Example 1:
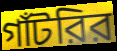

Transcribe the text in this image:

গাঁটরির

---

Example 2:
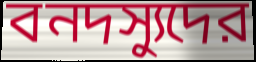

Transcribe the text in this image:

বনদস্যুদের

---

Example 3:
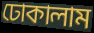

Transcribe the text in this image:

ঢোকালাম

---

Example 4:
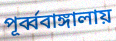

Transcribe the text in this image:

পূর্ব্ববাঙ্গালায়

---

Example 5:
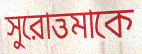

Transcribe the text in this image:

সুরোত্তমাকে